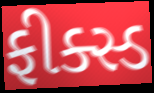
ફીક્સ્ડ